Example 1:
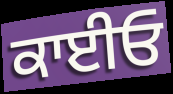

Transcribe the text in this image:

ਕਾਈਓ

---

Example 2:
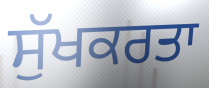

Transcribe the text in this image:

ਸੁੱਖਕਰਤਾ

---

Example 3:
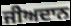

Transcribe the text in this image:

ਜੀਅਦਾਨ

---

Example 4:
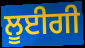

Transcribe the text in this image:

ਲੂਈਗੀ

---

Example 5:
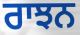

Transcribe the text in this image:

ਰਾਝਨ